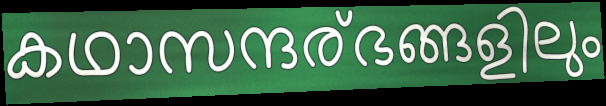
കഥാസന്ദര്ഭങ്ങളിലും